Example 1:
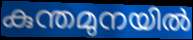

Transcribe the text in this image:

കുന്തമുനയിൽ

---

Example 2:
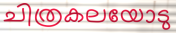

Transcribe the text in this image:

ചിത്രകലയോടു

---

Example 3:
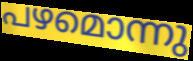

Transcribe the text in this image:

പഴമൊന്നു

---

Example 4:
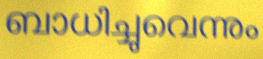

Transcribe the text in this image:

ബാധിച്ചുവെന്നും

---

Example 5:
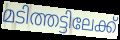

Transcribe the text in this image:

മടിത്തട്ടിലേക്ക്